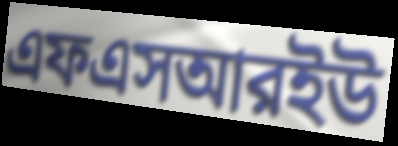
এফএসআরইউ